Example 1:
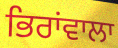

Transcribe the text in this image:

ਭਿਰਾਂਵਾਲਾ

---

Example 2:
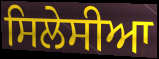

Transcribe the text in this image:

ਸਿਲੇਸੀਆ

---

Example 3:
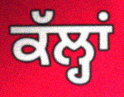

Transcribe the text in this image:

ਕੱਲ੍ਹਾਂ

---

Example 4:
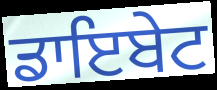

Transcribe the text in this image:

ਡਾਇਬੇਟ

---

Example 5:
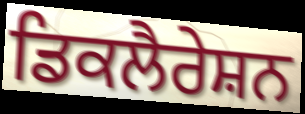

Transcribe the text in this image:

ਡਿਕਲੈਰੇਸ਼ਨ